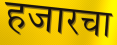
हजारचा